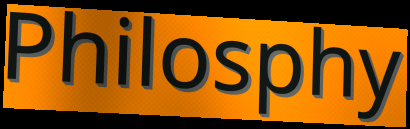
Philosphy